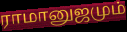
ராமானுஜமும்